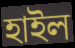
হাইল